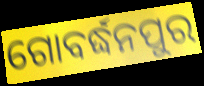
ଗୋବର୍ଦ୍ଧନପୁର